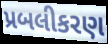
પ્રબલીકરણ